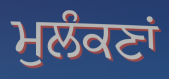
ਮੁਲੰਕਣਾਂ